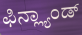
ಫಿನ್ಲ್ಯಾಂಡ್